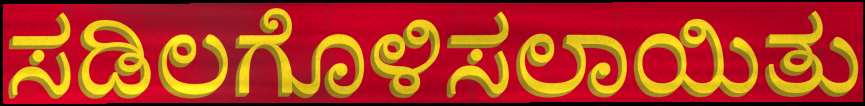
ಸಡಿಲಗೊಳಿಸಲಾಯಿತು